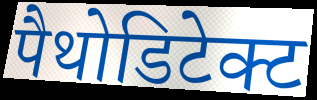
पैथोडिटेक्ट